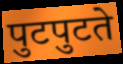
पुटपुटते